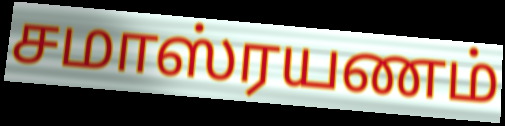
சமாஸ்ரயணம்